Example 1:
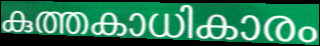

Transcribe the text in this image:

കുത്തകാധികാരം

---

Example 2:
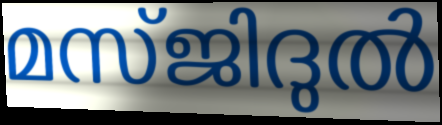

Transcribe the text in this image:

മസ്ജിദുൽ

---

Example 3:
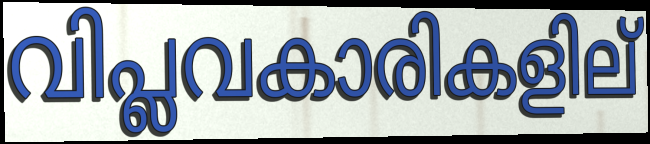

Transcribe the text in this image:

വിപ്ലവകാരികളില്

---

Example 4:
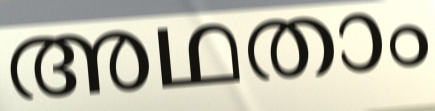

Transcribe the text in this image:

അഥതാം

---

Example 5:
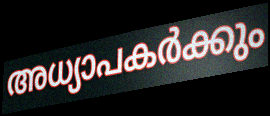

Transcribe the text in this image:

അധ്യാപകർക്കും